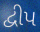
દ્વીપ